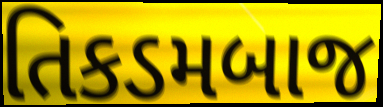
તિકડમબાજ